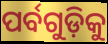
ପର୍ବଗୁଡ଼ିକୁ